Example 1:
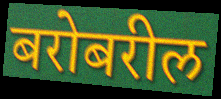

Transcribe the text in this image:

बरोबरील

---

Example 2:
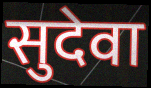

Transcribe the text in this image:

सुदेवा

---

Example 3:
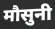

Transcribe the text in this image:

मौसुनी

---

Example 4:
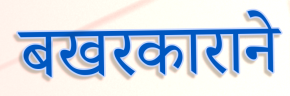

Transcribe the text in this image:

बखरकाराने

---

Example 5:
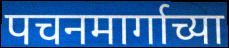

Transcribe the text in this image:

पचनमार्गाच्या